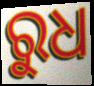
ରୁଧ